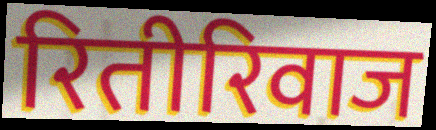
रितीरिवाज